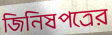
জিনিষপত্রের